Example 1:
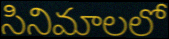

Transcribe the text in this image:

సినిమాలలో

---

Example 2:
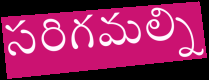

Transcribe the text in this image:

సరిగమల్ని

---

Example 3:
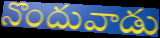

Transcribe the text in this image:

నొందువాడు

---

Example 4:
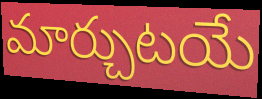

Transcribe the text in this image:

మార్చుటయే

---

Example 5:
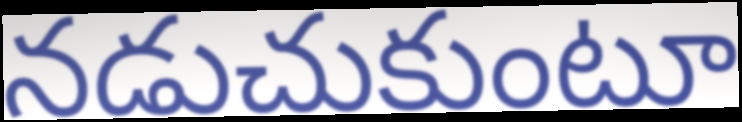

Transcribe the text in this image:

నడుచుకుంటూ